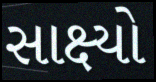
સાક્ષ્યો